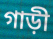
গাড়ী